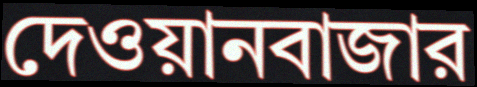
দেওয়ানবাজার